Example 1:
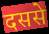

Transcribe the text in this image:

दससे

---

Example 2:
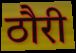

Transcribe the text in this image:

ठौरी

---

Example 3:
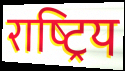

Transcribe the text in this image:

राष्ट्रिय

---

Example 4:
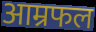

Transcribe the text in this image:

आम्रफल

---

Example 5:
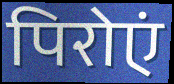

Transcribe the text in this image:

पिरोएं